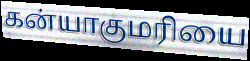
கன்யாகுமரியை